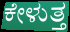
ಕೇಳುತ್ತ